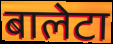
बालेटा